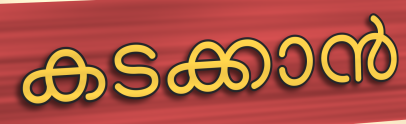
കടക്കാൻ